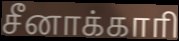
சீனாக்காரி